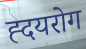
ह्दयरोग